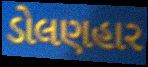
ડોલણહાર